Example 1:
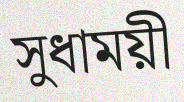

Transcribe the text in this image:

সুধাময়ী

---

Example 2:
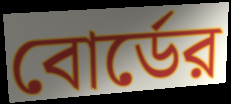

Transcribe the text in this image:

বোর্ডের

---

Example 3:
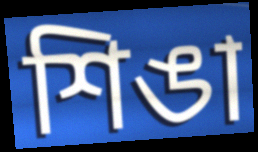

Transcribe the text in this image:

শিঙা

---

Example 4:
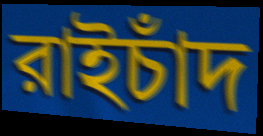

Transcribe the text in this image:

রাইচাঁদ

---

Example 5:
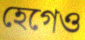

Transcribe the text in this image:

হেগেও